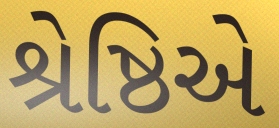
શ્રેષ્ઠિએ